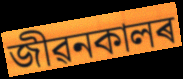
জীৱনকালৰ